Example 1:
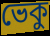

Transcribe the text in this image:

ভেকু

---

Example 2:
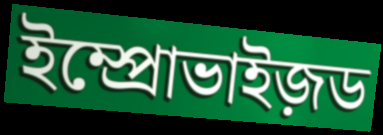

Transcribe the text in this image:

ইম্প্রোভাইজ়ড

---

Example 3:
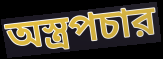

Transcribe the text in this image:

অস্ত্রপচার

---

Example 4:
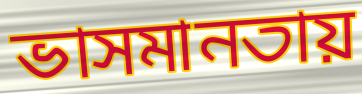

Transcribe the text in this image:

ভাসমানতায়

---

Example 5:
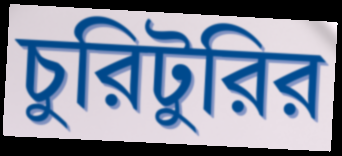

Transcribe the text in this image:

চুরিটুরির